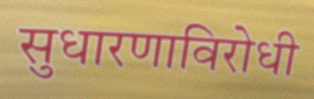
सुधारणाविरोधी